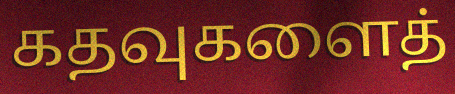
கதவுகளைத்